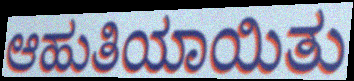
ಆಹುತಿಯಾಯಿತು